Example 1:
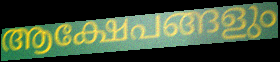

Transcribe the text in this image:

ആക്ഷേപങ്ങളും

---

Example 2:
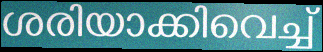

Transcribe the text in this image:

ശരിയാക്കിവെച്ച്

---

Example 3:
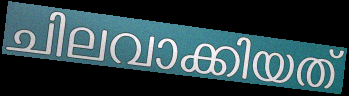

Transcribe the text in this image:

ചിലവാക്കിയത്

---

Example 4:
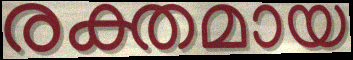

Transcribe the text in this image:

രക്തമായ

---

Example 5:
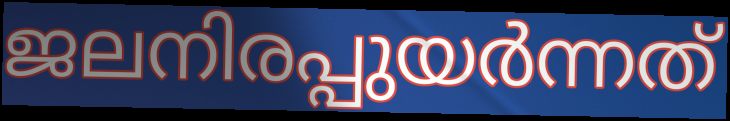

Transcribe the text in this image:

ജലനിരപ്പുയർന്നത്